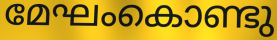
മേഘംകൊണ്ടു